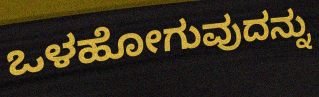
ಒಳಹೋಗುವುದನ್ನು